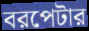
বরপেটার